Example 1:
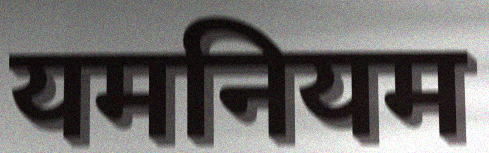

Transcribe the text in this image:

यमनियम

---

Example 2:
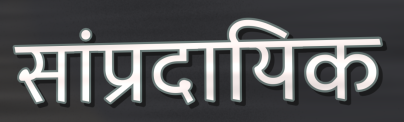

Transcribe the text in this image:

सांप्रदायिक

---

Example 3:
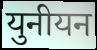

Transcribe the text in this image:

युनीयन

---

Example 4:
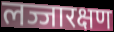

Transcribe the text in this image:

लज्जारक्षण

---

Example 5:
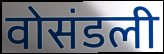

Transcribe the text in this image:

वोसंडली